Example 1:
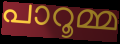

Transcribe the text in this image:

പാറൂമ്മ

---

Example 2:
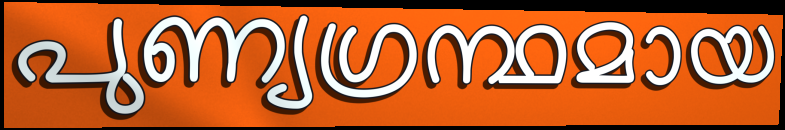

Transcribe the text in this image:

പുണ്യഗ്രന്ഥമായ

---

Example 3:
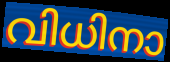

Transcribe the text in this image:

വിധിനാ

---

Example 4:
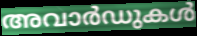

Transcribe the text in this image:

അവാർഡുകൾ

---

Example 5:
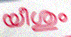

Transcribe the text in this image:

യീശും